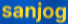
sanjog